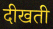
दीखती